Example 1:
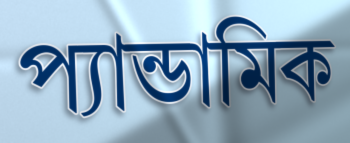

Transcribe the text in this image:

প্যান্ডামিক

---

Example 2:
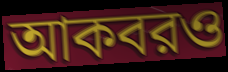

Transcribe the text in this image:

আকবরও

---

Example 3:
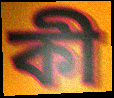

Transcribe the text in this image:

কী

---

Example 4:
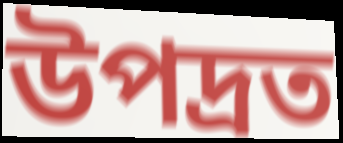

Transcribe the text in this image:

উপদ্রত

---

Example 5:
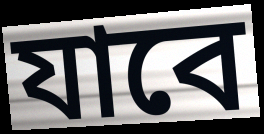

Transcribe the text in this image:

যাবে